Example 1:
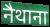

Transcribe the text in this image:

नैथाना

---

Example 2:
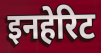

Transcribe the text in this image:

इनहेरिट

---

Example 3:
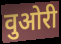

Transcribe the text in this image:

वुओरी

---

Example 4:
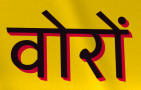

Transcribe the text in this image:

वोरों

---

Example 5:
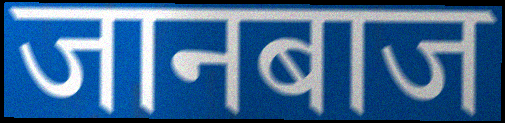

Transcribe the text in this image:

जानबाज